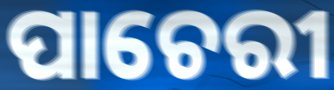
ପାଚେରୀ